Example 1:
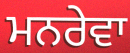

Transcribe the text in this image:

ਮਨਰੇਵਾ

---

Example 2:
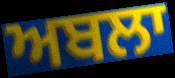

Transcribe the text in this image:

ਅਬਲਾ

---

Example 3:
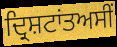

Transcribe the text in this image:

ਦ੍ਰਿਸ਼ਟਾਂਤਅਸੀਂ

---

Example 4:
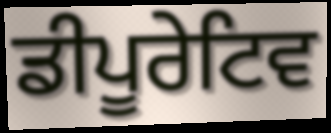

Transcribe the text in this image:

ਡੀਪੂਰੇਟਿਵ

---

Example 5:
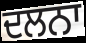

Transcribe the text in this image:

ਦਲਨਾ